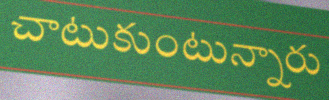
చాటుకుంటున్నారు